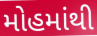
મોહમાંથી